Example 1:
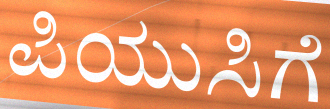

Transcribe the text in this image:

ಪಿಯುಸಿಗೆ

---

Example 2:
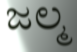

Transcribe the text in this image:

ಜಲ್ಮ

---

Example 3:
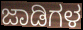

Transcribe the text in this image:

ಜಾಡಿಗಳ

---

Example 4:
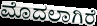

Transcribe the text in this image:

ಮೊದಲಾಗಿರೆ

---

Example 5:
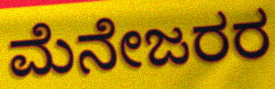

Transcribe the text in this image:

ಮೆನೇಜರರ